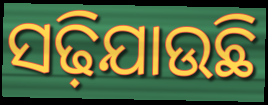
ସଢ଼ିଯାଉଛି